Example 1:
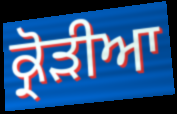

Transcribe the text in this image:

ਕ੍ਰੋੜੀਆ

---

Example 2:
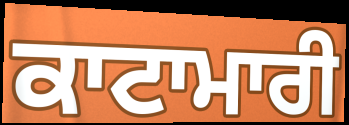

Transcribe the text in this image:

ਕਾਟਾਮਾਰੀ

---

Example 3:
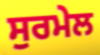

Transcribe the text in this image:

ਸੁਰਮੇਲ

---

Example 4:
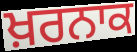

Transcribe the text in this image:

ਖ਼ਰਨਾਕ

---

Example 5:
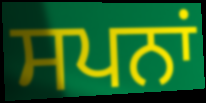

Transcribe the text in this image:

ਸਪਨਾਂ